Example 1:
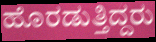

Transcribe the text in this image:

ಹೊರಡುತ್ತಿದ್ದರು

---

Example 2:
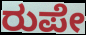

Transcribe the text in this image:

ರುಪೇ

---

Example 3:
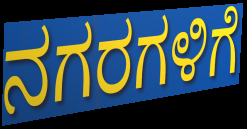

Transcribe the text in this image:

ನಗರಗಳಿಗೆ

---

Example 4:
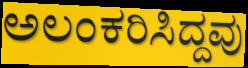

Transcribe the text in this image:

ಅಲಂಕರಿಸಿದ್ದವು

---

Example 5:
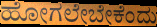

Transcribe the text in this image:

ಹೋಗಲೇಬೇಕೆಂದು